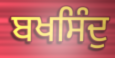
ਬਖਸਿੰਦੁ